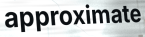
approximate